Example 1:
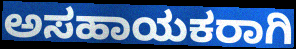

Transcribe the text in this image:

ಅಸಹಾಯಕರಾಗಿ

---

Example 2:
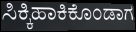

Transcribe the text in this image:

ಸಿಕ್ಕಿಹಾಕಿಕೊಂಡಾಗ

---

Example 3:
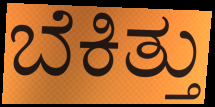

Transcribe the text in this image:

ಬೆಕಿತ್ತು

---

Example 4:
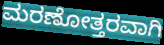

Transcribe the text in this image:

ಮರಣೋತ್ತರವಾಗಿ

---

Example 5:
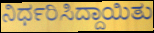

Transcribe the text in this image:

ನಿರ್ಧರಿಸಿದ್ದಾಯಿತು